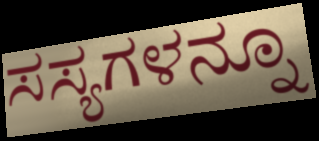
ಸಸ್ಯಗಳನ್ನೂ